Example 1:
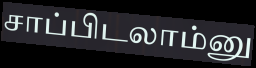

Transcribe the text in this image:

சாப்பிடலாம்னு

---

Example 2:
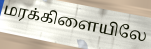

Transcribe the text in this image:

மரக்கிளையிலே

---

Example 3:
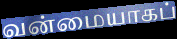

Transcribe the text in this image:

வன்மையாகப்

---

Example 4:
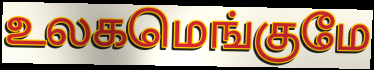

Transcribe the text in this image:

உலகமெங்குமே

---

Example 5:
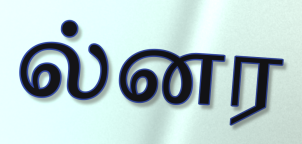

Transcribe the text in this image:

ல்னர